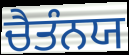
ਚੈਤੰਨਯ